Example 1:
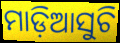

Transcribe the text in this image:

ମାଡ଼ିଆସୁଚି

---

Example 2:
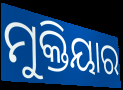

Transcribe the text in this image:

ମୁକ୍ତିୟାର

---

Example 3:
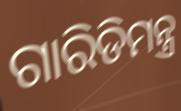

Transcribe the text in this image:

ଗାରିଡିମନ୍ତ୍ର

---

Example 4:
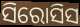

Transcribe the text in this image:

ସିରୋସିସ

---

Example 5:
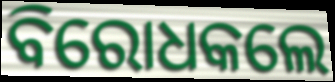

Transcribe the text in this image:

ବିରୋଧକଲେ